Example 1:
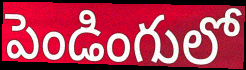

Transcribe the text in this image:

పెండింగులో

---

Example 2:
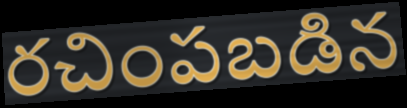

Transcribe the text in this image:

రచింపబడిన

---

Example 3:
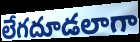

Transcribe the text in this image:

లేగదూడలాగా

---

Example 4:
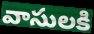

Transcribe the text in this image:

వాసులకి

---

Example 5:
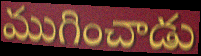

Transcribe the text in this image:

ముగించాడు